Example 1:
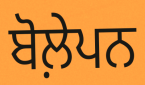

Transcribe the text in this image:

ਬੋਲ਼ੇਪਨ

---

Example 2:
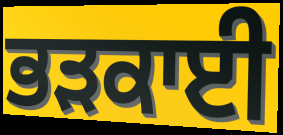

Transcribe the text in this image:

ਭੜਕਾਈ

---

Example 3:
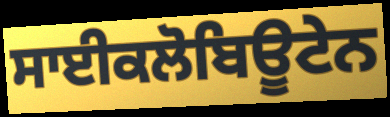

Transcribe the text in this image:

ਸਾਈਕਲੋਬਿਊਟੇਨ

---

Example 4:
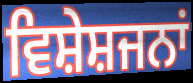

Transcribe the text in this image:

ਵਿਸ਼ੇਸ਼ਜਨਾਂ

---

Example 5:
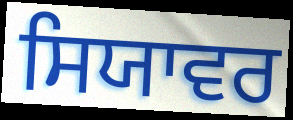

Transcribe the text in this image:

ਸਿਯਾਵਰ